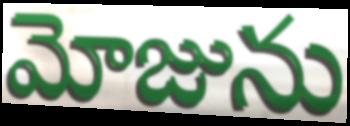
మోజును